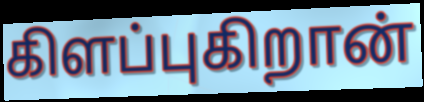
கிளப்புகிறான்